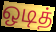
ஒடித்